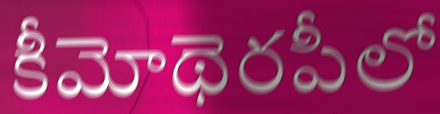
కీమోథెరపీలో